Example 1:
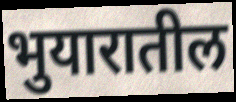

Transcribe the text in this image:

भुयारातील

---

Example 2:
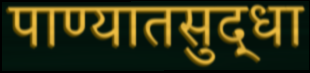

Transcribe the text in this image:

पाण्यातसुद्धा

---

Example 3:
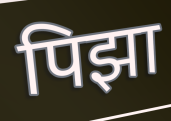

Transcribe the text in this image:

पिझा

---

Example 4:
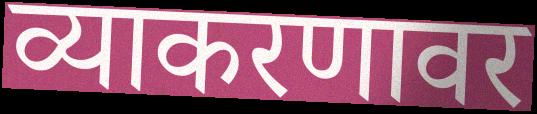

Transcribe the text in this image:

व्याकरणावर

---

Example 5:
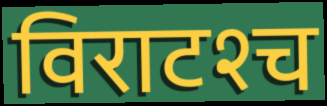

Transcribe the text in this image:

विराटश्च